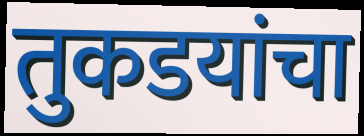
तुकडयांचा